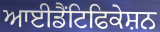
ਆਈਡੈਂਟਿਫਿਕੇਸ਼ਨ